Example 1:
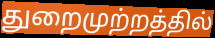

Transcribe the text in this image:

துறைமுற்றத்தில்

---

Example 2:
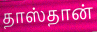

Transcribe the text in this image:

தாஸ்தான்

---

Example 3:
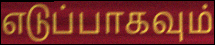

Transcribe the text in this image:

எடுப்பாகவும்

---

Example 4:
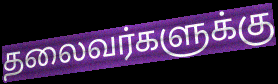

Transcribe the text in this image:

தலைவர்களுக்கு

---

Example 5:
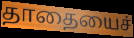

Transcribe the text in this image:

தாதையைச்